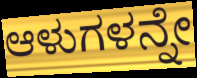
ಆಳುಗಳನ್ನೇ